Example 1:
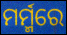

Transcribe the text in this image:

ମର୍ମ୍ମରେ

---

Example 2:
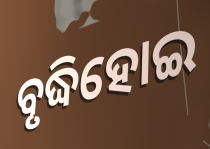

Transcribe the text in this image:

ବୃଦ୍ଧିହୋଇ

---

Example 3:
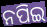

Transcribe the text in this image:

ନପିଇ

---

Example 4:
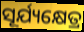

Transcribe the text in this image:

ସୂର୍ଯ୍ୟକ୍ଷେତ୍ର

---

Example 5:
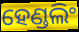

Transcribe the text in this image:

ହେଣ୍ଡଲିଂ